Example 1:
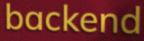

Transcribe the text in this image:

backend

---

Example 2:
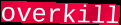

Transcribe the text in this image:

overkill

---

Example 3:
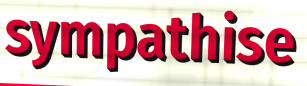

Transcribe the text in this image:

sympathise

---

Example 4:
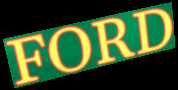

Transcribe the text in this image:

FORD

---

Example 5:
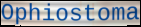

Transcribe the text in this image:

Ophiostoma